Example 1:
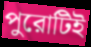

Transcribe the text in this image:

পুরোটিই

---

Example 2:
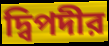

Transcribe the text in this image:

দ্বিপদীর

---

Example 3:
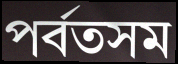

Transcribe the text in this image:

পর্বতসম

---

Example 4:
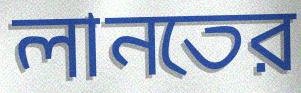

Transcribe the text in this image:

লানতের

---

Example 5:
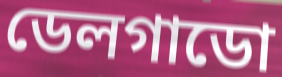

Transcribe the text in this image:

ডেলগাডো